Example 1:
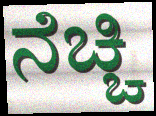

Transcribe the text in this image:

ನೆಚ್ಚಿ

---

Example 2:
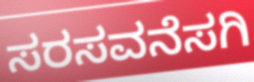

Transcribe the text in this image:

ಸರಸವನೆಸಗಿ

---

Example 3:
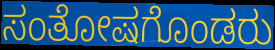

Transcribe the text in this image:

ಸಂತೋಷಗೊಂಡರು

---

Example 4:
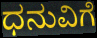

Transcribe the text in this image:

ಧನುವಿಗೆ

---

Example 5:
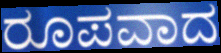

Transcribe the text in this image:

ರೂಪವಾದ